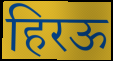
हिरऊ